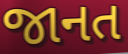
જાનત